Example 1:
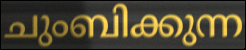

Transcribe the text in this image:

ചുംബിക്കുന്ന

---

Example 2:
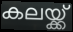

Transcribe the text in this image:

കലയ്ക്ക്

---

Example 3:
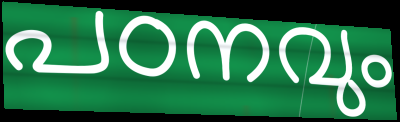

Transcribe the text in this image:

പഠനവും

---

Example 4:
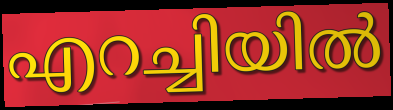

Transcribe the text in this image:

എറച്ചിയിൽ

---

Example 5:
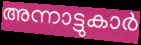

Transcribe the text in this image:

അന്നാട്ടുകാർ